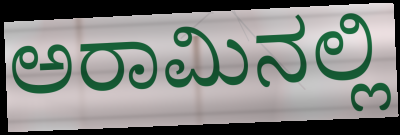
ಅರಾಮಿನಲ್ಲಿ